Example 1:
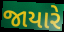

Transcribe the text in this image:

જાયારે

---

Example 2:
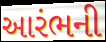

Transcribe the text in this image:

આરંભની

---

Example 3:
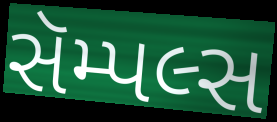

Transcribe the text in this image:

સૅમ્પલ્સ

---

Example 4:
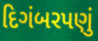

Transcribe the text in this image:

દિગંબરપણું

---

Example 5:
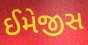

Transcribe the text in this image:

ઈમેજીસ